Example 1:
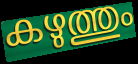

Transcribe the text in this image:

കഴുത്തും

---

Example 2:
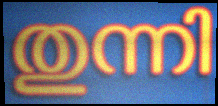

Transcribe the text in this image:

തുന്നി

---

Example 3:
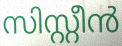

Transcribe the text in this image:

സിസ്റ്റീൻ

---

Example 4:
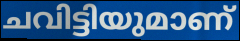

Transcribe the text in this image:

ചവിട്ടിയുമാണ്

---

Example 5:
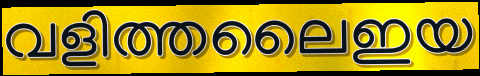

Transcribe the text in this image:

വളിത്തലൈഇയ